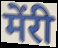
मेंरी